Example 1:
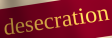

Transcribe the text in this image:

desecration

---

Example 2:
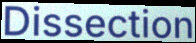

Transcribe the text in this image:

Dissection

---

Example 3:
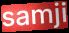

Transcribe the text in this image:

samji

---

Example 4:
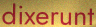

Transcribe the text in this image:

dixerunt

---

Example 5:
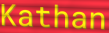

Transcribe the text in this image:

Kathan